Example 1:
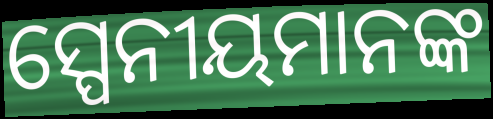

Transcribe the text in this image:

ସ୍ପେନୀୟମାନଙ୍କ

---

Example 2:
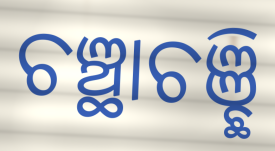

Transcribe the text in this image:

ଚଞ୍ଛାଚଞ୍ଛି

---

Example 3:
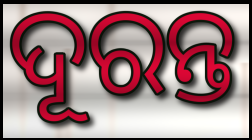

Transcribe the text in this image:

ଦୂରନ୍ତ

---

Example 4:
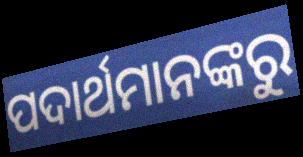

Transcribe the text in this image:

ପଦାର୍ଥମାନଙ୍କରୁ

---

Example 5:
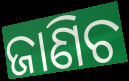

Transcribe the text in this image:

ଜାଣିଚ